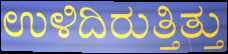
ಉಳಿದಿರುತ್ತಿತ್ತು